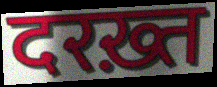
दरख़्त